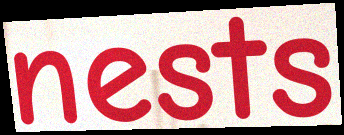
nests